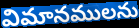
విమానములను